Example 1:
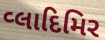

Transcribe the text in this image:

વ્લાદિમિર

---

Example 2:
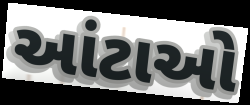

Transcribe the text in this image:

આંટાઓ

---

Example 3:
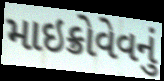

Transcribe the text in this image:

માઇક્રોવેવનું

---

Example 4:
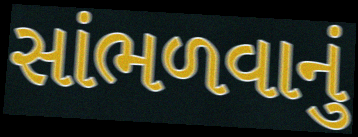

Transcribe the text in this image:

સાંભળવાનું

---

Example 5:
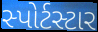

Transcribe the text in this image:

સ્પોર્ટસ્ટાર